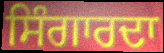
ਸਿੰਗਾਰਦਾ